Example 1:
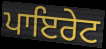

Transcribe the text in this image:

ਪਾਇਰੇਟ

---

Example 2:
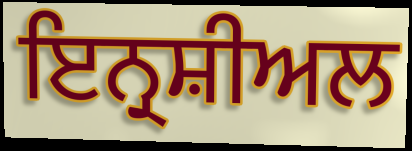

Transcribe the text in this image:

ਇਨ੍ਰਸ਼ੀਅਲ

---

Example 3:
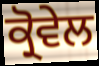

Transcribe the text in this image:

ਕ੍ਰੋਵੇਲ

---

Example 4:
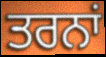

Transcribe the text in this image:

ਤਰਨਾਂ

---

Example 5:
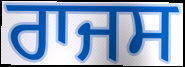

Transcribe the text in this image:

ਰਾਜਸ